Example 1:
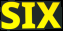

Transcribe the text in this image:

SIX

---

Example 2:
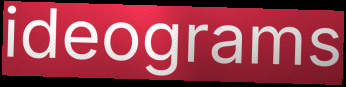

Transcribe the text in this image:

ideograms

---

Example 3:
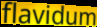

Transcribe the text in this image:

flavidum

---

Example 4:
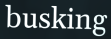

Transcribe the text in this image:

busking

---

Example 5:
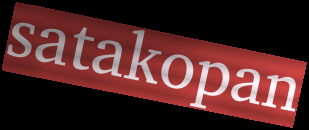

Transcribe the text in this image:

satakopan